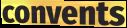
convents